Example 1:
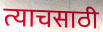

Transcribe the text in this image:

त्याचसाठी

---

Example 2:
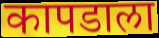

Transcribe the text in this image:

कापडाला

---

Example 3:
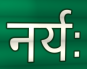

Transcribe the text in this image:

नर्यः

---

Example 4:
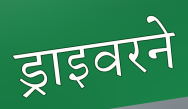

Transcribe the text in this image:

ड्राइवरने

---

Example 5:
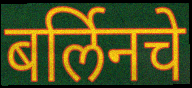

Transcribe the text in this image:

बर्लिनचे